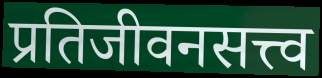
प्रतिजीवनसत्त्व